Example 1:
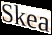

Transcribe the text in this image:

Skea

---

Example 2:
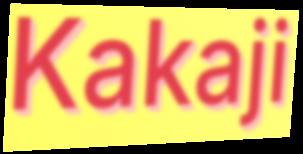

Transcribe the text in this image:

Kakaji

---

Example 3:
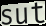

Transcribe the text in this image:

sut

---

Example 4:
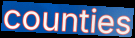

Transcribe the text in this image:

counties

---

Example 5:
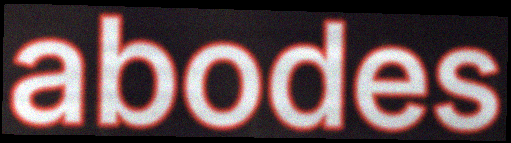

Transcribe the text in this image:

abodes